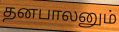
தனபாலனும்